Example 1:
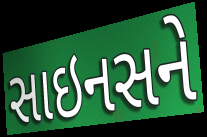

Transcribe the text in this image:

સાઇનસને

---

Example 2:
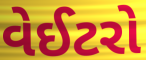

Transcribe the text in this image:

વેઈટરો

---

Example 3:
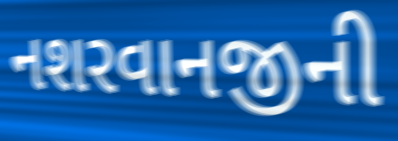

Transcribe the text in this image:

નશરવાનજીની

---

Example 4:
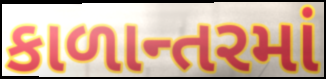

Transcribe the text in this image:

કાળાન્તરમાં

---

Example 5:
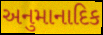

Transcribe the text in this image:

અનુમાનાદિક